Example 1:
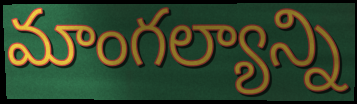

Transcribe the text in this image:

మాంగల్యాన్ని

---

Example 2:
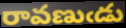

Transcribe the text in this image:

రావణుఁడు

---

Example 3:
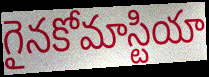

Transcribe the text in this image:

గైనకోమాస్టియా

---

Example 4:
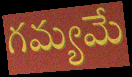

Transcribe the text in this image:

గమ్యమే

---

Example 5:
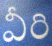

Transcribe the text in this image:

వీరి